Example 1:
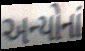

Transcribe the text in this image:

અન્યોનાં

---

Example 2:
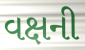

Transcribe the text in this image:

વક્ષની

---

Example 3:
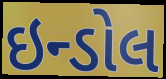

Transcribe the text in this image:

ઇન્ડોલ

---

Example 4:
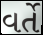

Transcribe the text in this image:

વર્તે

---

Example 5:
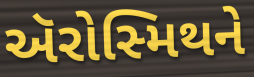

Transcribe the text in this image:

ઍરોસ્મિથને